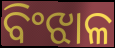
ବିଂଝାଳ